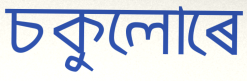
চকুলোৰে